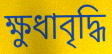
ক্ষুধাবৃদ্ধি